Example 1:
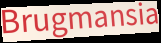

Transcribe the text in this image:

Brugmansia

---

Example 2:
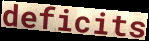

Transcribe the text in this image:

deficits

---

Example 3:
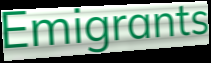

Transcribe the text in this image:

Emigrants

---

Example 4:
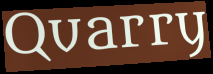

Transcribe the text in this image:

Quarry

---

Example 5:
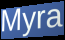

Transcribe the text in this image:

Myra